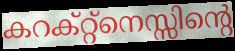
കറക്റ്റ്നെസ്സിന്റെ